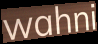
wahni